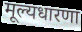
मूल्यधारणा